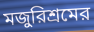
মজুরিশ্রমের